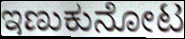
ಇಣುಕುನೋಟ